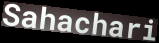
Sahachari